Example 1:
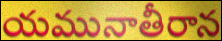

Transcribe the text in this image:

యమునాతీరాన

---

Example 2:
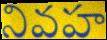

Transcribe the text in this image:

నివహ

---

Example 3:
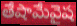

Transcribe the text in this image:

తేషామేవైష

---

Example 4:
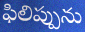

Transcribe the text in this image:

ఫిలిప్పును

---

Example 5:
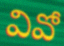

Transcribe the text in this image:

వివో